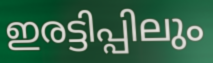
ഇരട്ടിപ്പിലും